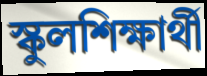
স্কুলশিক্ষার্থী